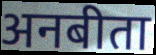
अनबीता